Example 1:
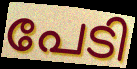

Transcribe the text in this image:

പേടി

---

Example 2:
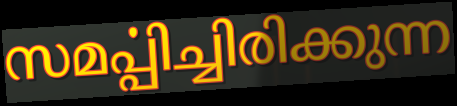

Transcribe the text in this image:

സമൎപ്പിച്ചിരിക്കുന്ന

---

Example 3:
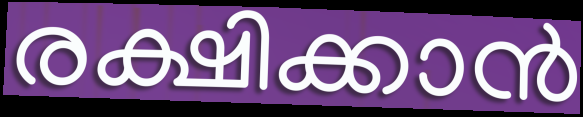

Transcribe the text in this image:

രക്ഷിക്കാൻ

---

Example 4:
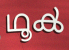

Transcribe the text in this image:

ഥൂൿ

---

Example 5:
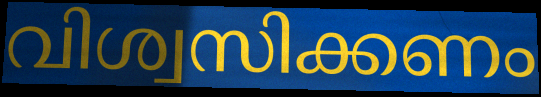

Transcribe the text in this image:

വിശ്വസിക്കണം